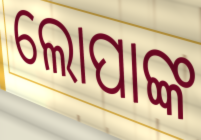
ଲୋପାଙ୍କ